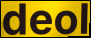
deol